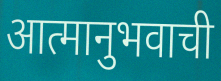
आत्मानुभवाची